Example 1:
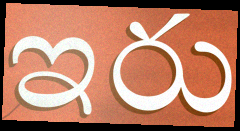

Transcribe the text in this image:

ఇరు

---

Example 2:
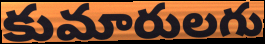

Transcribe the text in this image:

కుమారులగు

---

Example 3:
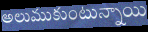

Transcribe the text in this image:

అలుముకుంటున్నాయి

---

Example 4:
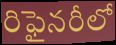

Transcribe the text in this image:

రిఫైనరీలో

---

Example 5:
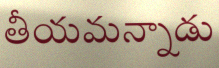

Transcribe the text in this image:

తీయమన్నాడు